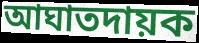
আঘাতদায়ক